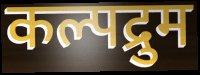
कल्पद्रुम